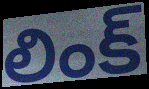
లింక్